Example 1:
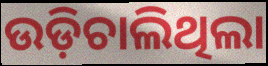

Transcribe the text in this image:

ଉଡ଼ିଚାଲିଥିଲା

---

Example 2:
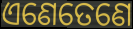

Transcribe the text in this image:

ଏଣେତେଣେ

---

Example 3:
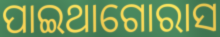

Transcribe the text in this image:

ପାଇଥାଗୋରାସ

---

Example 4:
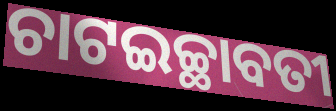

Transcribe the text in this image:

ଚାଟଇଚ୍ଛାବତୀ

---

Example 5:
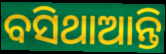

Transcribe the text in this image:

ବସିଥାଆନ୍ତି